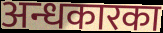
अन्धकारका